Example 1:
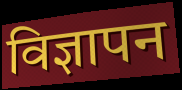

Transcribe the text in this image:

विज्ञापन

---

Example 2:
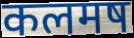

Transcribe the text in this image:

कलमष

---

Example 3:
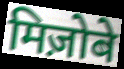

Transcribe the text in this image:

मिज़ोबे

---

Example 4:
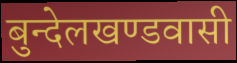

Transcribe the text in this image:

बुन्देलखण्डवासी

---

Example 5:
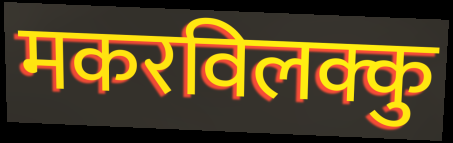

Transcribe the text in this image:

मकरविलक्कु